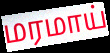
மரமாய்